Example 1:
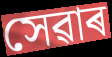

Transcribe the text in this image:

সেৱাৰ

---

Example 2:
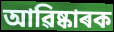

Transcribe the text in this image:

আৱিষ্কাৰক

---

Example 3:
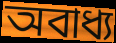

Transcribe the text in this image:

অবাধ্য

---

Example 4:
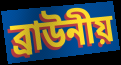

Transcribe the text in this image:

ব্ৰাউনীয়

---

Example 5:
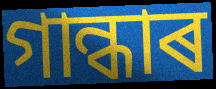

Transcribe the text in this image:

গান্ধাৰ